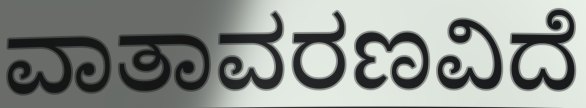
ವಾತಾವರಣವಿದೆ